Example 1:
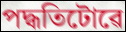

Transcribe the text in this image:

পদ্ধতিটোৱে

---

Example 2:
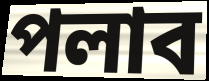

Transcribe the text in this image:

পলাব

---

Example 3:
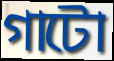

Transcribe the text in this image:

গাটো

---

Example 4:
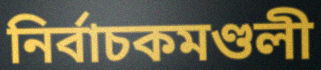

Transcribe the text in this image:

নিৰ্বাচকমণ্ডলী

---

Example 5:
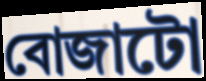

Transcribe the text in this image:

বোজাটো